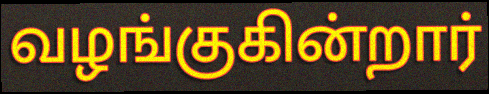
வழங்குகின்றார்